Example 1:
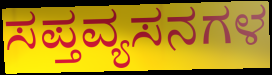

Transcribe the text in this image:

ಸಪ್ತವ್ಯಸನಗಳ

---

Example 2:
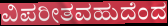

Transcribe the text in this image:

ವಿಪರೀತವಹುದೆಂದ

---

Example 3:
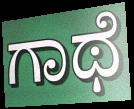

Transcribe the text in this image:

ಗಾಥೆ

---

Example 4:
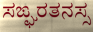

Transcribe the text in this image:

ಸಙ್ಘರತನಸ್ಸ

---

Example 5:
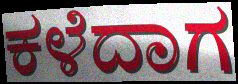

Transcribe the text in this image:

ಕಳೆದಾಗ